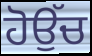
ਹੋਉੱਚ